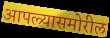
आपल्यासमोरील